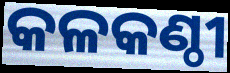
କଳକଣ୍ଠୀ